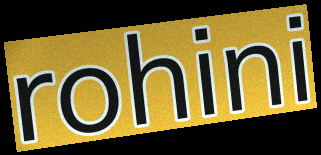
rohini